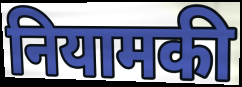
नियामकी